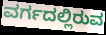
ವರ್ಗದಲ್ಲಿರುವ